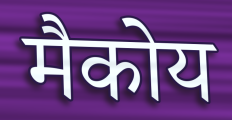
मैकोय